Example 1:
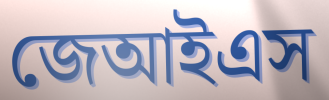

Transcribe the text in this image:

জেআইএস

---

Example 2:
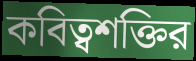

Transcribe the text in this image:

কবিত্বশক্তির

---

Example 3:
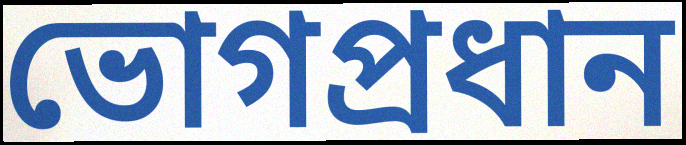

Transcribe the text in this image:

ভোগপ্রধান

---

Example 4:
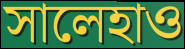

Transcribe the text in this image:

সালেহাও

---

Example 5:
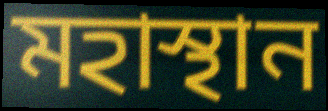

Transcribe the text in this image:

মহাস্থান